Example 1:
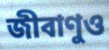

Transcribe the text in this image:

জীবাণুও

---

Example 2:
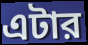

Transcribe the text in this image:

এটার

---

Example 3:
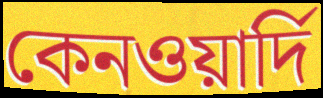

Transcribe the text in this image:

কেনওয়ার্দি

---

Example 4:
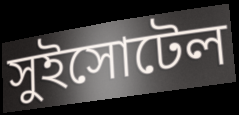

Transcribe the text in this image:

সুইসোটেল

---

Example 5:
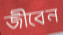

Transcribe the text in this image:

জীবেন